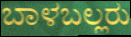
ಬಾಳಬಲ್ಲರು